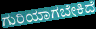
ಗುರಿಯಾಗಬೇಕಿದೆ